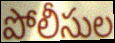
పోలీసుల